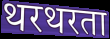
थरथरता